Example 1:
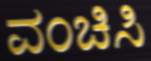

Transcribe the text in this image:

ವಂಚಿಸಿ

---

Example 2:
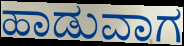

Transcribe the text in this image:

ಹಾಡುವಾಗ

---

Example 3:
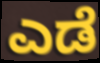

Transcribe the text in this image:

ಎಡೆ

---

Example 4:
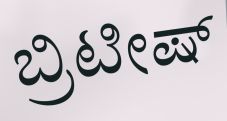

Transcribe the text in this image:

ಬ್ರಿಟೀಷ್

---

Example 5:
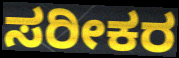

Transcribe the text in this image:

ಸರೀಕರ